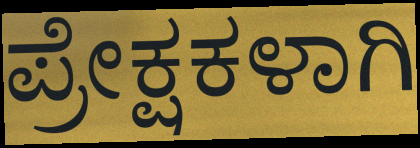
ಪ್ರೇಕ್ಷಕಳಾಗಿ